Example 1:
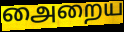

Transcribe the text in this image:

அைறைய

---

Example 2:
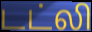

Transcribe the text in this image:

டட்லி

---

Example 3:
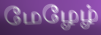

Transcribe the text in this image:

மேழேழ்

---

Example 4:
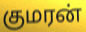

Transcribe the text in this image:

குமரன்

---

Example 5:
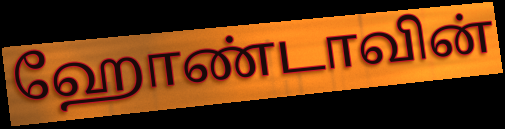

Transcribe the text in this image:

ஹோண்டாவின்